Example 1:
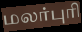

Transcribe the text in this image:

மலர்புரி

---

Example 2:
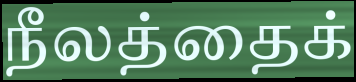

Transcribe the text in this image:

நீலத்தைக்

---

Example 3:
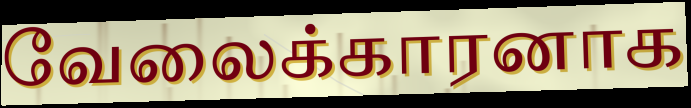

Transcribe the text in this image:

வேலைக்காரனாக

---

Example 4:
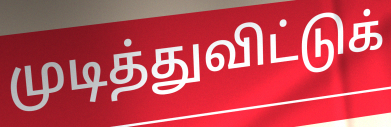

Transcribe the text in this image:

முடித்துவிட்டுக்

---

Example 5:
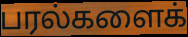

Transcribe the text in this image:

பரல்களைக்